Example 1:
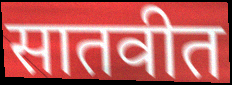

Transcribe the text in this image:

सातवीत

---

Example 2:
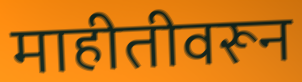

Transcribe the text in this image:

माहीतीवरून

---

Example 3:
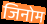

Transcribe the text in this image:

जिनोम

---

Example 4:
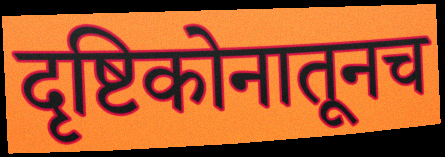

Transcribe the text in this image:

दृष्टिकोनातूनच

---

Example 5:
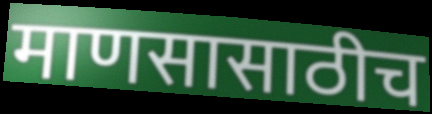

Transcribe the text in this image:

माणसासाठीच